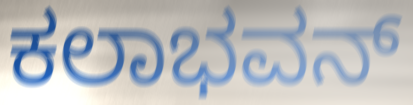
ಕಲಾಭವನ್